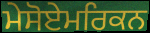
ਮੇਸੋਏਮਰਿਕਨ